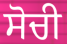
ਸੋਚੀ